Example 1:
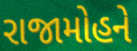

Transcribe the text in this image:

રાજામોહને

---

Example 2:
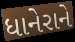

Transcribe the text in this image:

ધાનેરાને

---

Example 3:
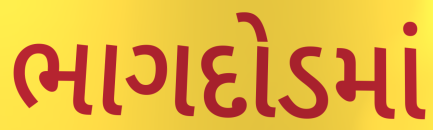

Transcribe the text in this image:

ભાગદોડમાં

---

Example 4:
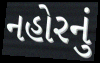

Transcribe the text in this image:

નહોરનું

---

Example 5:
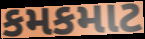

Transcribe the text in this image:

કમકમાટ